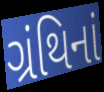
ગ્રંથિનાં